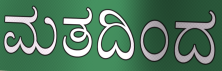
ಮತದಿಂದ